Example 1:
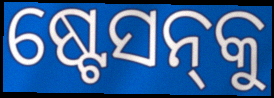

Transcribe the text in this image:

ଷ୍ଟେସନ୍‍କୁ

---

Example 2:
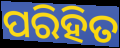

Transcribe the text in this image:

ପରିହିତ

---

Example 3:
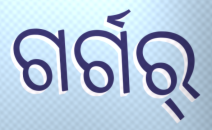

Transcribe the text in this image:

ଗର୍ଗର୍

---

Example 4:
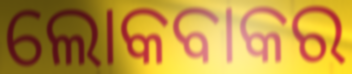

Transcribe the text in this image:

ଲୋକବାକର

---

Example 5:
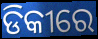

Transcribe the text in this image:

ଡିକୀରେ